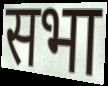
सभा